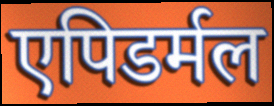
एपिडर्मल